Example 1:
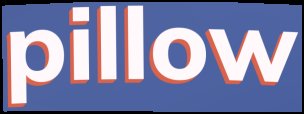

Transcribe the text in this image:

pillow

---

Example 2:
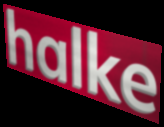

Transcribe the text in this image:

halke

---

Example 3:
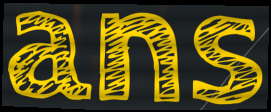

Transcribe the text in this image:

ans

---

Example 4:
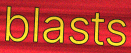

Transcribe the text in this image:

blasts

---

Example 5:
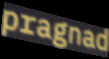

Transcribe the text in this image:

pragnad